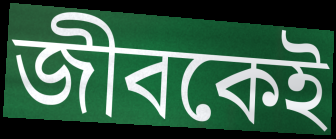
জীবকেই